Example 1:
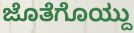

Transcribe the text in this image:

ಜೊತೆಗೊಯ್ದು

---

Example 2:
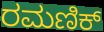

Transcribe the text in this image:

ರಮಣಿಕ್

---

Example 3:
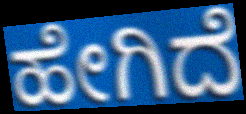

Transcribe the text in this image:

ಹೇಗಿದೆ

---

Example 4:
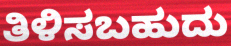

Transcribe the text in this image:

ತಿಳಿಸಬಹುದು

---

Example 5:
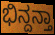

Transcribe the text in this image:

ಭಿನ್ದನ್ತಾ